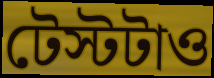
টেস্টটাও